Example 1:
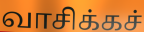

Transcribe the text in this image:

வாசிக்கச்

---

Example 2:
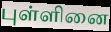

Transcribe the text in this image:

புள்ளினை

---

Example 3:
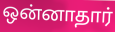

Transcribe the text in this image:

ஒன்னாதார்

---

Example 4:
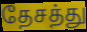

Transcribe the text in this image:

தேசத்து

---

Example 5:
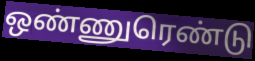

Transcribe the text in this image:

ஒண்ணுரெண்டு